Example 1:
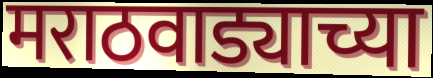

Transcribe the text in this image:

मराठवाड्याच्या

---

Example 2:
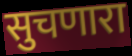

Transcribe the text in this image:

सुचणारा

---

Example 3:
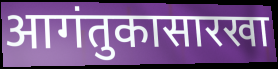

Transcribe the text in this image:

आगंतुकासारखा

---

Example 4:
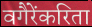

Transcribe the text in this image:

वगैरेंकरिता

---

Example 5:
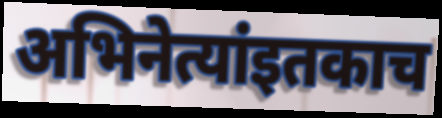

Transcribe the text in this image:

अभिनेत्यांइतकाच